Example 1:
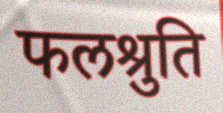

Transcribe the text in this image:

फलश्रुति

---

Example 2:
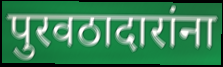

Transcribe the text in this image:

पुरवठादारांना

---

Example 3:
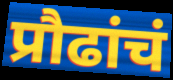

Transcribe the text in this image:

प्रौढांचं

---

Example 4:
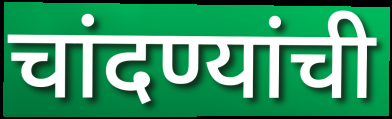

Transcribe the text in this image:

चांदण्यांची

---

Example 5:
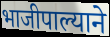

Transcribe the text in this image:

भाजीपाल्याने